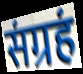
संग्रहं